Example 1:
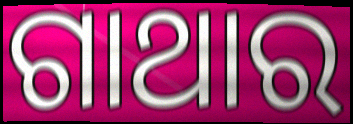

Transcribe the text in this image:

ଗାଥାର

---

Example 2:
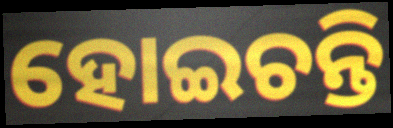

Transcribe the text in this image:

ହୋଇଚନ୍ତି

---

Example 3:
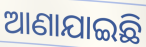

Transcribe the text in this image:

ଆଣାଯାଇଛି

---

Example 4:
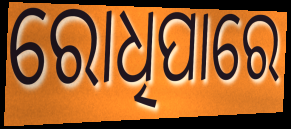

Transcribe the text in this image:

ରୋଧିପାରେ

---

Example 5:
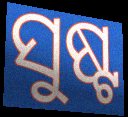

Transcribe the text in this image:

ସୁଷ୍ଟ